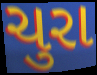
ચુરા